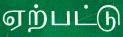
ஏற்பட்டு